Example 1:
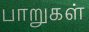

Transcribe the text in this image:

பாறுகள்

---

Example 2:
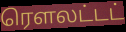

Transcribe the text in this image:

ரௌலட்டட்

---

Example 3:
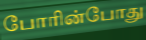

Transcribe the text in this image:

போரின்போது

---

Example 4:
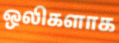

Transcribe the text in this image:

ஒலிகளாக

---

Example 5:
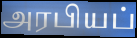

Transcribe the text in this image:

அரபியப்